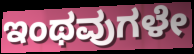
ಇಂಥವುಗಳೇ